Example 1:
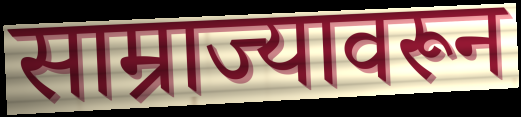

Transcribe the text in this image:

साम्राज्यावरून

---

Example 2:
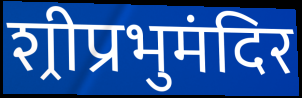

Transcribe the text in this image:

श्रीप्रभुमंदिर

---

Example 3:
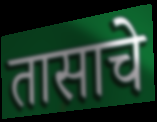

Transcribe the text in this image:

तासाचे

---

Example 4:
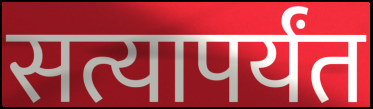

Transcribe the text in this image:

सत्यापर्यंत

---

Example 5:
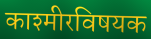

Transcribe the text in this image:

काश्मीरविषयक